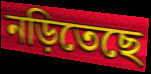
নড়িতেছে